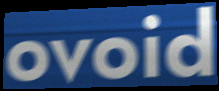
ovoid